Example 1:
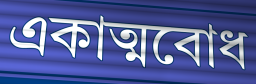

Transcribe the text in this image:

একাত্মবোধ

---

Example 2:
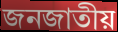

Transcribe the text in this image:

জনজাতীয়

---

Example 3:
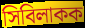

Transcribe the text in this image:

সিবিলাকক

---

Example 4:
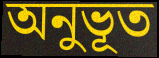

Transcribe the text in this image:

অনুভূত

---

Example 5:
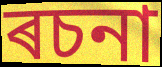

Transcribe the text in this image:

ৰচনা